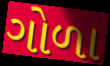
ગોળા